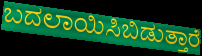
ಬದಲಾಯಿಸಿಬಿಡುತ್ತಾರೆ